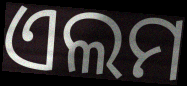
ଏଲମ